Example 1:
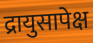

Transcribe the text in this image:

द्रायुसापेक्ष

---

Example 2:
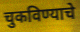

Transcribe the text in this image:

चुकविण्याचे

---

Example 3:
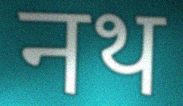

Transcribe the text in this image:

नथ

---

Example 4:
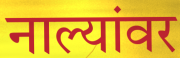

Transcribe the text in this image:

नाल्यांवर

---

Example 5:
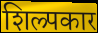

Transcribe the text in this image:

शिल्पकार